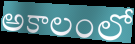
అకాలంలో